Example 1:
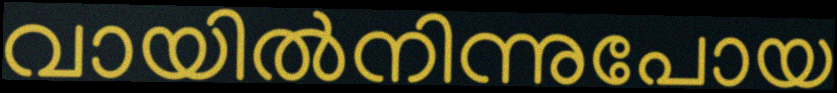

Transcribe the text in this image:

വായിൽനിന്നുപോയ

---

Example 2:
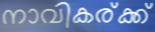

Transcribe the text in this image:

നാവികര്ക്ക്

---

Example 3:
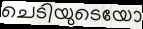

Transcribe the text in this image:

ചെടിയുടെയോ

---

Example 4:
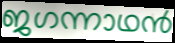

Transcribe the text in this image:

ജഗന്നാഥൻ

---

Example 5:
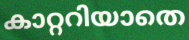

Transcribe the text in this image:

കാറ്ററിയാതെ